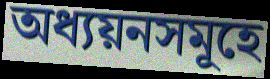
অধ্যয়নসমূহে